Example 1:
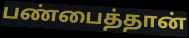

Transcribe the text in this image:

பண்பைத்தான்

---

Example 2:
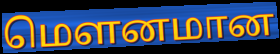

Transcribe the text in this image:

மௌனமான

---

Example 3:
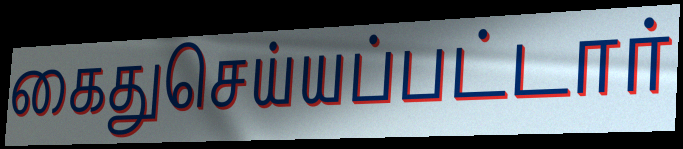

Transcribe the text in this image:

கைதுசெய்யப்பட்டார்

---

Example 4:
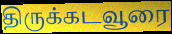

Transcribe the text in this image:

திருக்கடவூரை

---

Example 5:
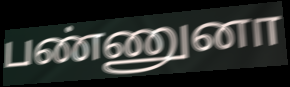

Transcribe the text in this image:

பண்ணுனா